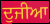
ਦੁਜੀਆ